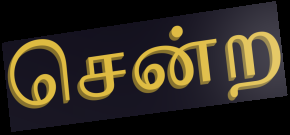
சென்ற